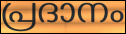
പ്രദാനം